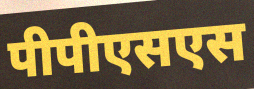
पीपीएसएस